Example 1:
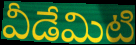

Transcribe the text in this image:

వీడేమిటి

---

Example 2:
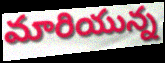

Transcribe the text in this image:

మారియున్న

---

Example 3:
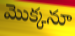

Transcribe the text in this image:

మొక్కనూ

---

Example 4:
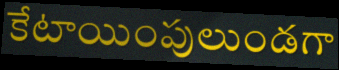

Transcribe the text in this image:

కేటాయింపులుండగా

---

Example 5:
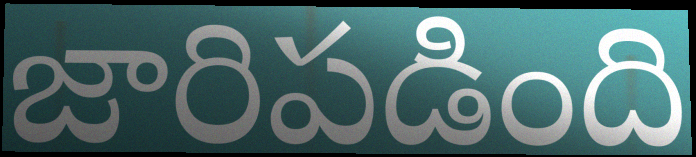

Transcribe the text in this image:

జారిపడింది